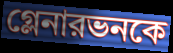
গ্লেনারভনকে